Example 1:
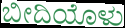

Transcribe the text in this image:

ಬೀದಿಯೊಳು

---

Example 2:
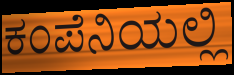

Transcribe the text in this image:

ಕಂಪೆನಿಯಲ್ಲಿ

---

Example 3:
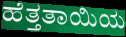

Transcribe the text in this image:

ಹೆತ್ತತಾಯಿಯ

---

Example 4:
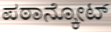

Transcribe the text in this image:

ಪಠಾನ್ಕೋಟ್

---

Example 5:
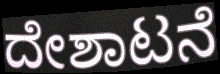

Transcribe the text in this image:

ದೇಶಾಟನೆ